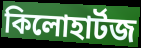
কিলোহার্টজ